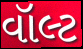
વૉલ્ટ